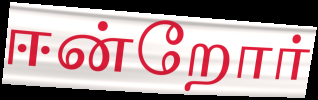
ஈன்றோர்